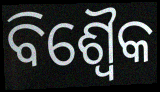
ବିଶ୍ୱୈକ